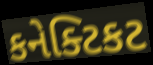
કનેક્ટિકટ